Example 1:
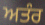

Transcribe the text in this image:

ਅਤੰਰ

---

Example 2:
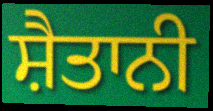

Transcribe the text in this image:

ਸ਼ੈਤਾਨੀ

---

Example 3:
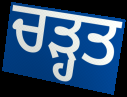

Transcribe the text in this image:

ਚੜ੍ਹਤ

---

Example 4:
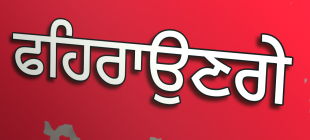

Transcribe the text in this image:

ਫਹਿਰਾਉਣਗੇ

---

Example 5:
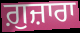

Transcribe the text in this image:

ਗ਼ੁਜ਼ਾਰਾ